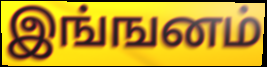
இங்ஙனம்